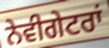
ਨੇਵੀਗੇਟਰਾਂ